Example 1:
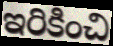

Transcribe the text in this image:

ఇరికించి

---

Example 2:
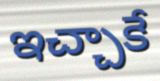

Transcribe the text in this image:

ఇచ్చాకే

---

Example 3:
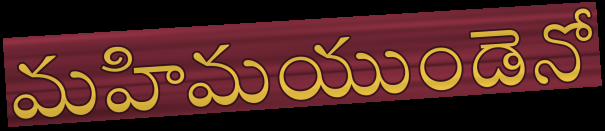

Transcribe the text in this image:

మహిమయుండెనో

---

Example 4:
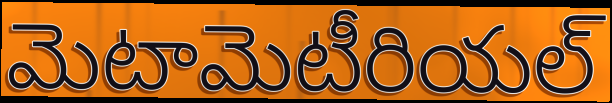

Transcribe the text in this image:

మెటామెటీరియల్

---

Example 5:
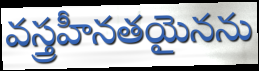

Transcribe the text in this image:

వస్త్రహీనతయైనను